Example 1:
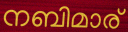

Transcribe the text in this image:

നബിമാര്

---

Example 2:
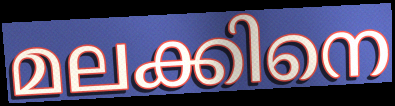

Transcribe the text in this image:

മലക്കിനെ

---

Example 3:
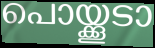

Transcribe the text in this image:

പൊയ്ക്കൂടാ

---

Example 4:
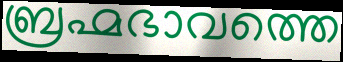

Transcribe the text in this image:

ബ്രഹ്മഭാവത്തെ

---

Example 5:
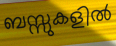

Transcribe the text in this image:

ബസ്സുകളിൽ